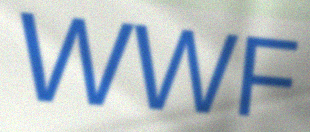
WWF